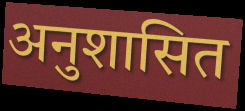
अनुशासित